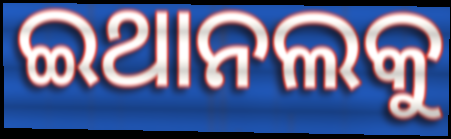
ଇଥାନଲକୁ